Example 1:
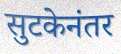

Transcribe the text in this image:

सुटकेनंतर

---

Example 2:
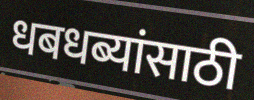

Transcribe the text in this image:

धबधब्यांसाठी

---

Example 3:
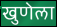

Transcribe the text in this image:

खुणेला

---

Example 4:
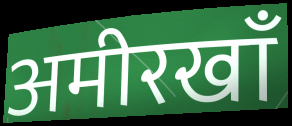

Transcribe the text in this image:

अमीरखाँ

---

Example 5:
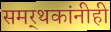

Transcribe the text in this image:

समर्थकांनीही